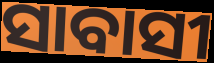
ସାବାସୀ